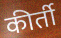
कीर्ती